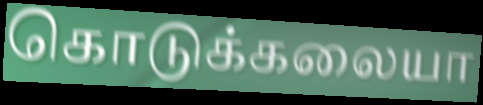
கொடுக்கலையா